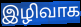
இழிவாக